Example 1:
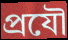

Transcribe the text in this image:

প্রযৌ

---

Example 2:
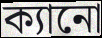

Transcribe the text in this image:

ক্যানো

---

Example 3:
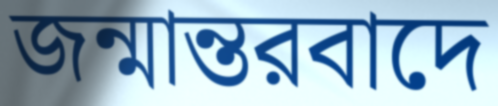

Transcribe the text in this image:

জন্মান্তরবাদে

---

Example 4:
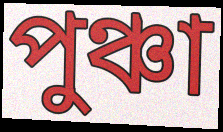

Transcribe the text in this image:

পুঞ্চা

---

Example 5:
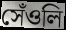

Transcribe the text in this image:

সেঁওলি